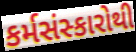
કર્મસંસ્કારોથી